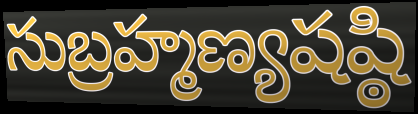
సుబ్రహ్మణ్యషష్ఠి